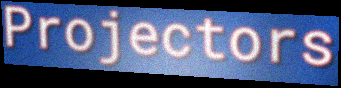
Projectors